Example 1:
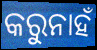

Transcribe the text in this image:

କରୁନାହଁ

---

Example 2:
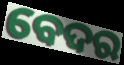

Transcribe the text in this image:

ବେଦର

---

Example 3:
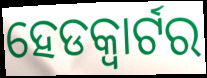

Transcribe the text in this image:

ହେଡକ୍ୱାର୍ଟର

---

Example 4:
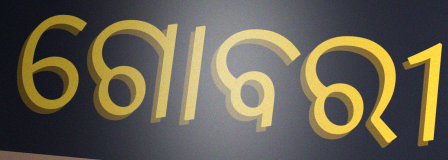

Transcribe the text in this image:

ଗୋବରୀ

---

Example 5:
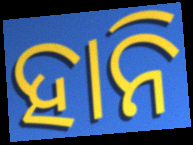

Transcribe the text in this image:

ହାନି